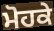
ਮੋਹਕੇ